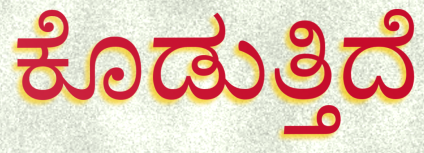
ಕೊಡುತ್ತಿದೆ